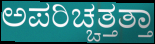
ಅಪರಿಚ್ಚತ್ತತ್ತಾ